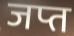
जप्त